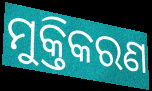
ମୁକ୍ତିକରଣ